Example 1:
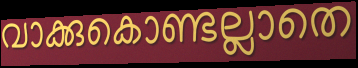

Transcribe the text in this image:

വാക്കുകൊണ്ടല്ലാതെ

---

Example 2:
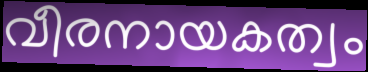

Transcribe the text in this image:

വീരനായകത്വം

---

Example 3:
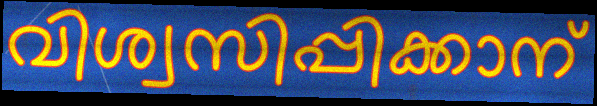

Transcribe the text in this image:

വിശ്വസിപ്പിക്കാന്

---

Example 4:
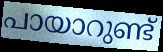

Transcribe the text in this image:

പായാറുണ്ട്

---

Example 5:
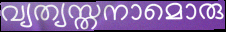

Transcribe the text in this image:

വ്യത്യസ്തനാമൊരു